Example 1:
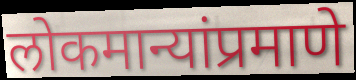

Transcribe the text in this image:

लोकमान्यांप्रमाणे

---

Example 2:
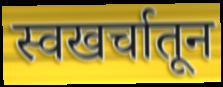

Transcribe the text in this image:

स्वखर्चातून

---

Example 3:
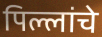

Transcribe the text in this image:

पिल्लांचे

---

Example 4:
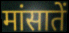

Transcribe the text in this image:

मांसातें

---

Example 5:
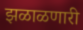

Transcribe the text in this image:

झळाळणारी